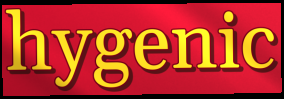
hygenic